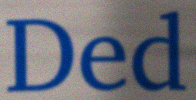
Ded